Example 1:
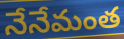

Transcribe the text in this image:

నేనేమంత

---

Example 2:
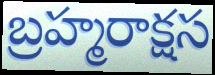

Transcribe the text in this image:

బ్రహ్మరాక్షస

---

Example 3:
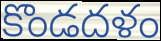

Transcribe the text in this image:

కొండదళం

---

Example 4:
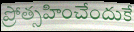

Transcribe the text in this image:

ప్రోత్సహించేందుకే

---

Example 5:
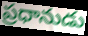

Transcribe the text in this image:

ప్రధానుడు